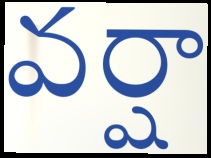
వర్షా